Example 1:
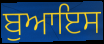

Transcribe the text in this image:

ਬੁਆਇਸ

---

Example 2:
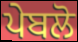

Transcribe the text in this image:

ਪੇਬਲੋ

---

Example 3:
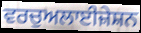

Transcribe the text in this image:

ਵਰਚੁਅਲਾਈਜ਼ੇਸ਼ਨ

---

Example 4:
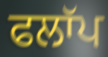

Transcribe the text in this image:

ਫਲਾੱਪ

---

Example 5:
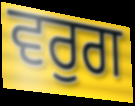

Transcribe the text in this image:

ਵਰੁਗ